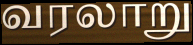
வரலாறு